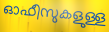
ഓഫീസുകളുള്ള